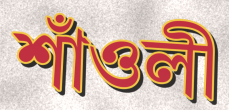
শাঁওলী